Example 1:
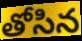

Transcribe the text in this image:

తోసిన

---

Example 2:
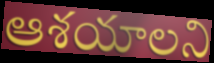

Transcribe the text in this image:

ఆశయాలని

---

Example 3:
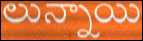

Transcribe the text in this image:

లున్నాయి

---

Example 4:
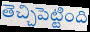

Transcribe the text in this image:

తెచ్చిపెట్టింది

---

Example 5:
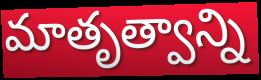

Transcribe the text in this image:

మాతృత్వాన్ని